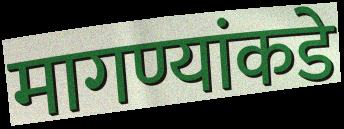
मागण्यांकडे